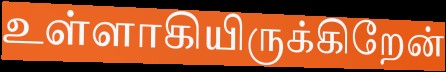
உள்ளாகியிருக்கிறேன்